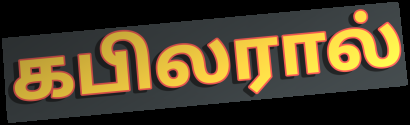
கபிலரால்